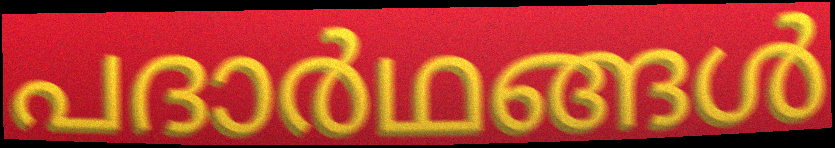
പദാർഥങ്ങൾ